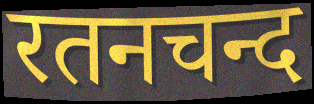
रतनचन्द